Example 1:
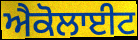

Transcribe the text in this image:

ਐਕੋਲਾਈਟ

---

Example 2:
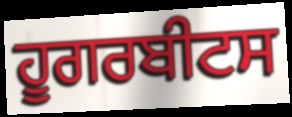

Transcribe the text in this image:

ਹੂਗਰਬੀਟਸ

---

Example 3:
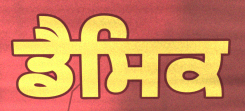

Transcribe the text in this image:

ਡੈਸਿਕ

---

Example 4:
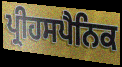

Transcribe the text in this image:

ਪ੍ਰੀਹਸਪੈਨਿਕ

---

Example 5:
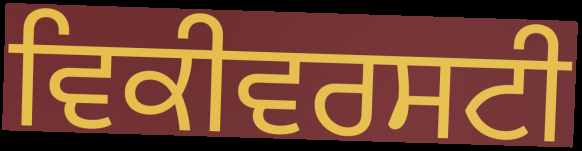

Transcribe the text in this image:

ਵਿਕੀਵਰਸਟੀ